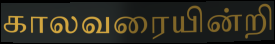
காலவரையின்றி